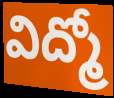
విద్మో